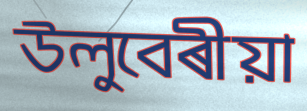
উলুবেৰীয়া